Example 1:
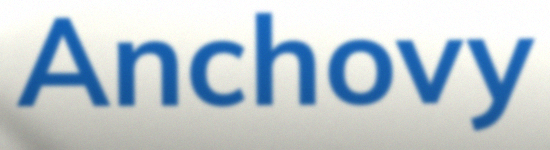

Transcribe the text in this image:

Anchovy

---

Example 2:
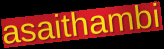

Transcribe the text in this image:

asaithambi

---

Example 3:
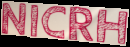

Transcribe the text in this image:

NICRH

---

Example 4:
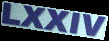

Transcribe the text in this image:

LXXIV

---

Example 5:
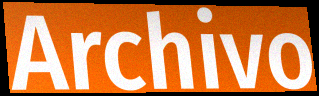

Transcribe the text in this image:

Archivo